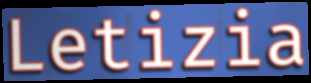
Letizia